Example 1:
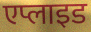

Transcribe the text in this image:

एप्लाइड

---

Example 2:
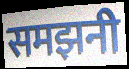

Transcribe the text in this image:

समझनी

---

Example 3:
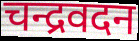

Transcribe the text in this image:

चन्द्रवदन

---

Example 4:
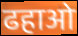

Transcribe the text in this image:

ढहाओ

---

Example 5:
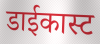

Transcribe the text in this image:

डाईकास्ट